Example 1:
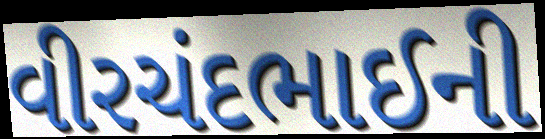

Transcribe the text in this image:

વીરચંદભાઈની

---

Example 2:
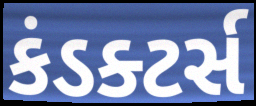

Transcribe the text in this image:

કંડક્ટર્સ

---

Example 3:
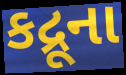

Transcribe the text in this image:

કદ્રૂના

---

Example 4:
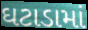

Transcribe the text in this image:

ઘટાડામાં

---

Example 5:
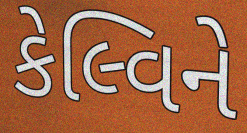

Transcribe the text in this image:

કેલ્વિને